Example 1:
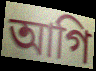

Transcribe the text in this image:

আগি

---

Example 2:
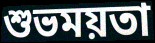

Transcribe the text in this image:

শুভময়তা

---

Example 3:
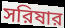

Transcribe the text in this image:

সরিষার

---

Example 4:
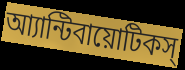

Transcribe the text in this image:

আ্যান্টিবায়োটিকস্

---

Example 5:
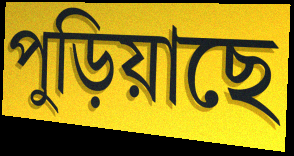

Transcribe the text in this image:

পুড়িয়াছে